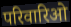
परिवारिओ